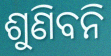
ଶୁଣିବନି